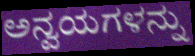
ಅನ್ವಯಗಳನ್ನು